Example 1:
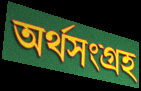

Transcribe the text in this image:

অর্থসংগ্রহ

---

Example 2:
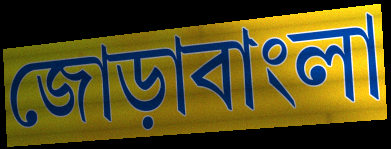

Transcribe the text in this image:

জোড়াবাংলা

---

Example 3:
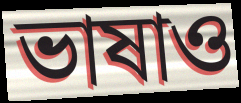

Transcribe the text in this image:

ভাষাও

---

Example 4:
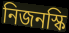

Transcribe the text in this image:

নিজনস্কি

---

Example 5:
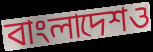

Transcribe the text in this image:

বাংলাদেশও